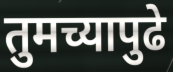
तुमच्यापुढे